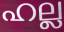
ഹല്ല